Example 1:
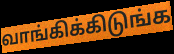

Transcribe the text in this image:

வாங்கிக்கிடுங்க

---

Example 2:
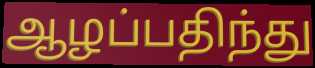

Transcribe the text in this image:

ஆழப்பதிந்து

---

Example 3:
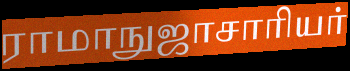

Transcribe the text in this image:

ராமாநுஜாசாரியர்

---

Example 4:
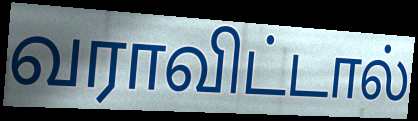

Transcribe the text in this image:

வராவிட்டால்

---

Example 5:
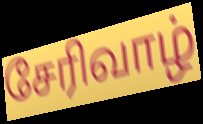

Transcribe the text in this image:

சேரிவாழ்